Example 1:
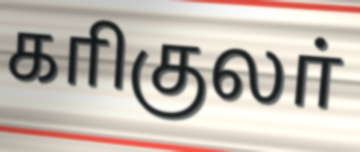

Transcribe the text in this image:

கரிகுலர்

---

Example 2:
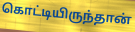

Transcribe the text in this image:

கொட்டியிருந்தான்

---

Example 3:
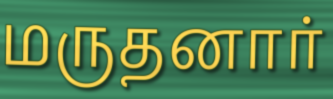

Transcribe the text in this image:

மருதனார்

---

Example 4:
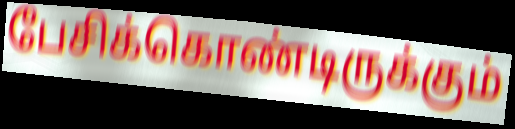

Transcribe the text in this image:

பேசிக்கொண்டிருக்கும்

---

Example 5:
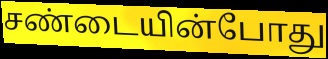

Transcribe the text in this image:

சண்டையின்போது